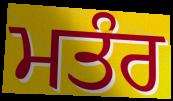
ਮਤੰਰ